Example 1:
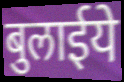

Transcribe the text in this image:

बुलाईये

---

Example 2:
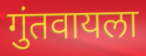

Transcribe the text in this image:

गुंतवायला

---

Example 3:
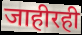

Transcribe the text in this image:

जाहीरही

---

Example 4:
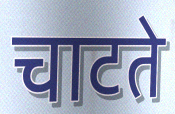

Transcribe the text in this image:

चाटते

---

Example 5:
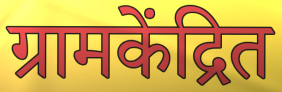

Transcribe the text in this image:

ग्रामकेंद्रित